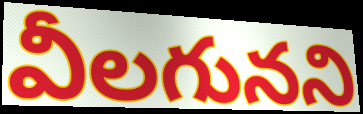
వీలగునని